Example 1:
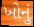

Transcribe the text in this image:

ખોનું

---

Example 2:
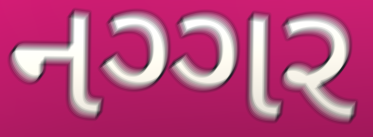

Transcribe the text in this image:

નગ્ગર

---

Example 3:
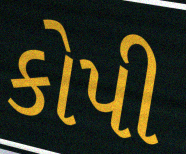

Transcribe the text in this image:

કોપી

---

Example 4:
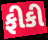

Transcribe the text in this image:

ફીકી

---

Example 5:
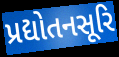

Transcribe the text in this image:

પ્રદ્યોતનસૂરિ